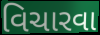
વિચારવા